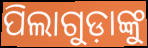
ପିଲାଗୁଡ଼ାଙ୍କୁ